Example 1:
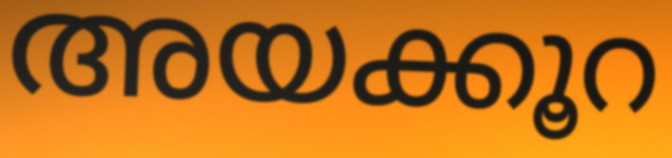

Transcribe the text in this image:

അയക്കൂറ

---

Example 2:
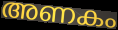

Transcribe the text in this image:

അണകം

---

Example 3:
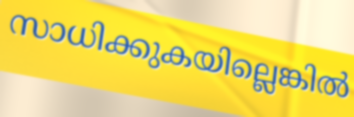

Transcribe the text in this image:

സാധിക്കുകയില്ലെങ്കിൽ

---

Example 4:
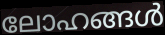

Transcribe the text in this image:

ലോഹങ്ങൾ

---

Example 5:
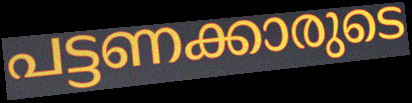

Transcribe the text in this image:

പട്ടണക്കാരുടെ